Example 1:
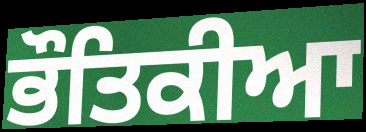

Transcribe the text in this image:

ਭੌਤਿਕੀਆ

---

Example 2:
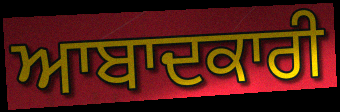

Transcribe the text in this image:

ਆਬਾਦਕਾਰੀ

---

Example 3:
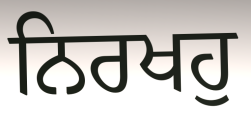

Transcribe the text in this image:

ਨਿਰਖਹੁ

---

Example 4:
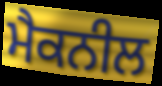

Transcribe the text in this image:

ਮੈਕਨੀਲ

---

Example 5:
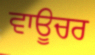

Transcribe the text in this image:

ਵਾਊਚਰ